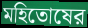
মহিতোষের